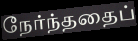
நேர்ந்ததைப்